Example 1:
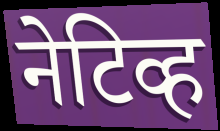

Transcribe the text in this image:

नेटिव्ह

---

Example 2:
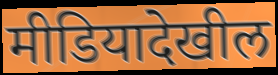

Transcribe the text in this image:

मीडियादेखील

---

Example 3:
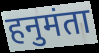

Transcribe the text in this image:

हनुमंता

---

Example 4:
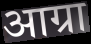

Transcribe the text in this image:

आग्रा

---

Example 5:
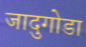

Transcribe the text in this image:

जादुगोडा